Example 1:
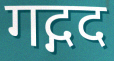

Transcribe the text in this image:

गद्गद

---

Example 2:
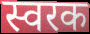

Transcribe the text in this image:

स्वरक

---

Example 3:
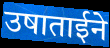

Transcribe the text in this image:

उषाताईने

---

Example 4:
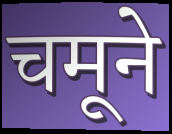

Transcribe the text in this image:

चमूने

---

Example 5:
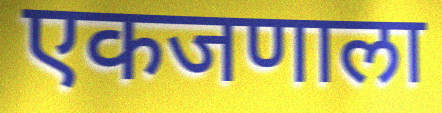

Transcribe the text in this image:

एकजणाला